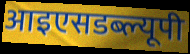
आइएसडब्ल्यूपी